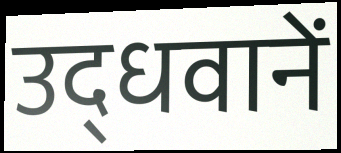
उद्धवानें